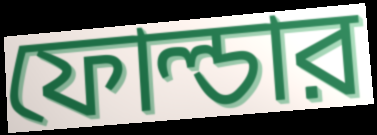
ফোল্ডার